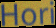
Hori